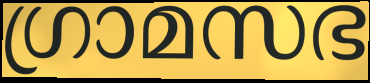
ഗ്രാമസഭ